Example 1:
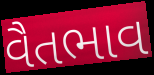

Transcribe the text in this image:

વૈતભાવ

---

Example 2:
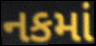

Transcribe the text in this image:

નકમાં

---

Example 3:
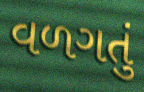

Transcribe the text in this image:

વળગતું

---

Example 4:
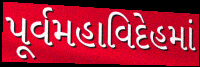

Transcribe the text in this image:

પૂર્વમહાવિદેહમાં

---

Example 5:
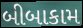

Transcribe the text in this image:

બીબાકામ